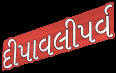
દીપાવલીપર્વ